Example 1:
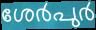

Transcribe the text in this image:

ശേർപുർ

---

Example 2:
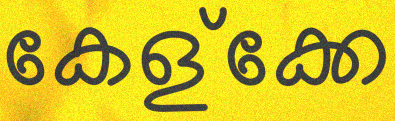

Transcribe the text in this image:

കേള്ക്കേ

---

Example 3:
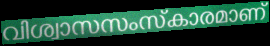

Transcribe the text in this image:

വിശ്വാസസംസ്‌കാരമാണ്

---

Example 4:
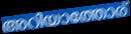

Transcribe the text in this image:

അറിയാത്തോര്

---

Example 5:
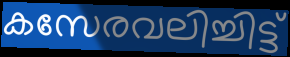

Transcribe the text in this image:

കസേരവലിച്ചിട്ട്